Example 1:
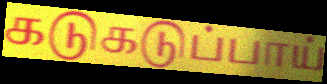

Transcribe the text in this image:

கடுகடுப்பாய்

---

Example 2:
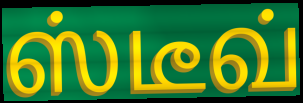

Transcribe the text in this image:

ஸ்டீவ்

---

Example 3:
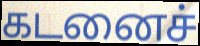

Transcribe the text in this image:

கடனைச்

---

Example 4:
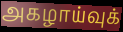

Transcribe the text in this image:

அகழாய்வுக்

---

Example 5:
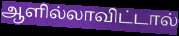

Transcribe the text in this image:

ஆளில்லாவிட்டால்